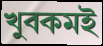
খুবকমই